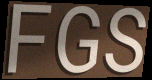
FGS